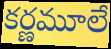
కర్ణమూలే